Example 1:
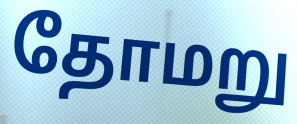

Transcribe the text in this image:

தோமறு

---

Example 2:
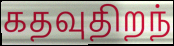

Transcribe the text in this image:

கதவுதிறந்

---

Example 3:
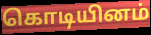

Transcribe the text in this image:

கொடியினம்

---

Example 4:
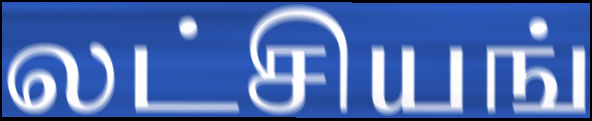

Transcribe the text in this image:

லட்சியங்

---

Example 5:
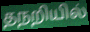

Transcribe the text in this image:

தநறியில்